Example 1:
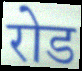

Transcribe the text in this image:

रोड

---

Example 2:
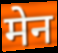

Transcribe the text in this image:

मेन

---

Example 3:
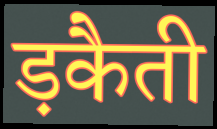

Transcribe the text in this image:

ड़कैती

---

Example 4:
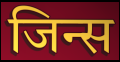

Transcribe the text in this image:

जिन्‍स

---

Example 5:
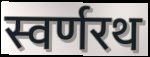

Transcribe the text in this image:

स्वर्णरथ